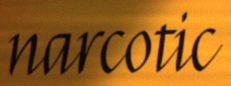
narcotic